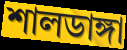
শালডাঙ্গা